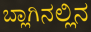
ಬ್ಲಾಗಿನಲ್ಲಿನ